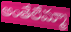
అంతేలేమ్మా